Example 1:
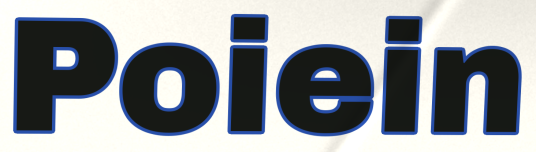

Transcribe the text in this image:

Poiein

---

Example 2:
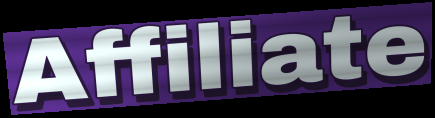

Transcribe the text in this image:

Affiliate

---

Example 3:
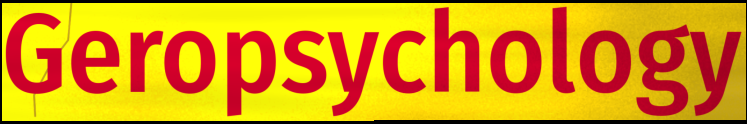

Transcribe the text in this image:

Geropsychology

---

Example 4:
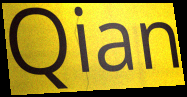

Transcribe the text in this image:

Qian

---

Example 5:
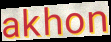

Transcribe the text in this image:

akhon